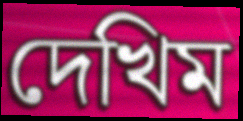
দেখিম